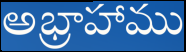
అభ్రాహాము